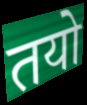
तयो